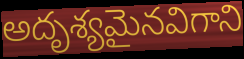
అదృశ్యమైనవిగాని